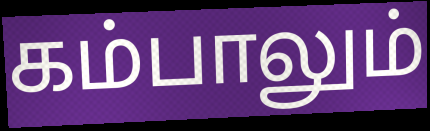
கம்பாலும்